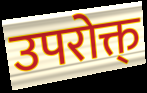
उपरोक्त्